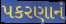
પકરણાનં